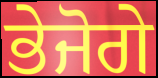
ਭੇਜੋਗੇ